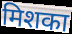
मिशका